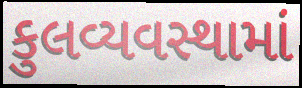
કુલવ્યવસ્થામાં